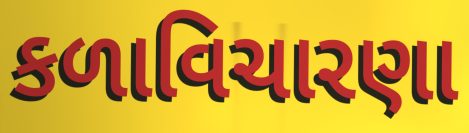
કળાવિચારણા